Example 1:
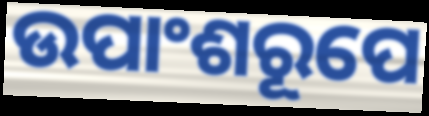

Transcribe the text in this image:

ଉପାଂଶରୂପେ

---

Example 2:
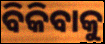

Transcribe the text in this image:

ବିକିବାକୁ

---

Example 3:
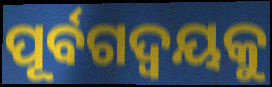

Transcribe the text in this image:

ପୂର୍ବଗଦ୍ଵୟକୁ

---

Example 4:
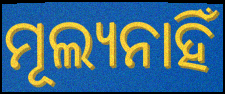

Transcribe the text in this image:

ମୂଲ୍ୟନାହିଁ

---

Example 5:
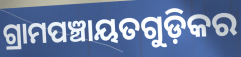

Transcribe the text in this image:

ଗ୍ରାମପଞ୍ଚାୟତଗୁଡ଼ିକର